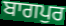
ਬਾਗਪੁਰ